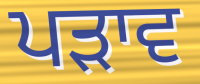
ਪੜਾਵ